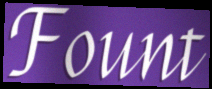
Fount